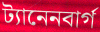
ট্যানেনবার্গ